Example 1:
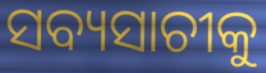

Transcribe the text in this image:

ସବ୍ୟସାଚୀକୁ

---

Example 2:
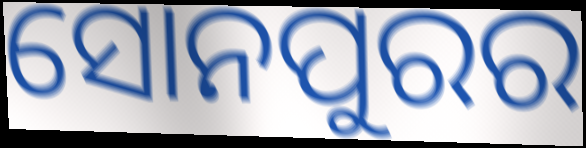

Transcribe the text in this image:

ସୋନପୁରର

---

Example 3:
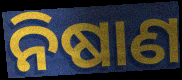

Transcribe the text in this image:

ନିଷାଣ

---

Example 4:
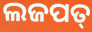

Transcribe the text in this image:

ଲଜପତ୍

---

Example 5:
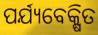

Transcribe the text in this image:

ପର୍ଯ୍ୟବେକ୍ଷିତ